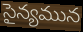
సైన్యమున